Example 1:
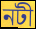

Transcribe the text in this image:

নটী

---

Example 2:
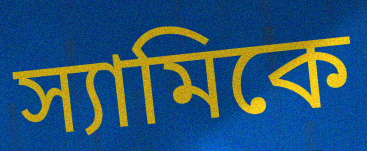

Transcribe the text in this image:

স্যামিকে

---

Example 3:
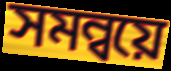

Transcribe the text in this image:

সমন্বয়ে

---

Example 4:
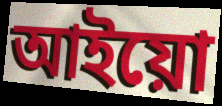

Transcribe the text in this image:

আইয়ো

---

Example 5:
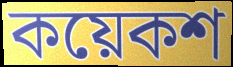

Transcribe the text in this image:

কয়েকশ